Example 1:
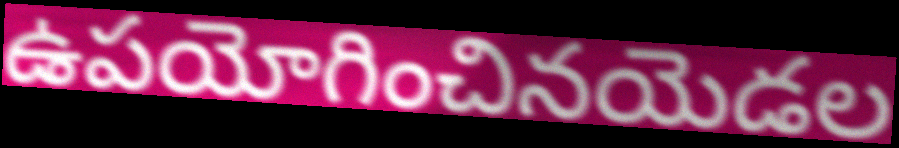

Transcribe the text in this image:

ఉపయోగించినయెడల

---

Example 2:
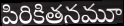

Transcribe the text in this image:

పిరికితనమూ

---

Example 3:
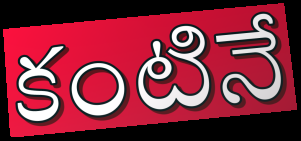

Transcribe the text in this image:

కంటినే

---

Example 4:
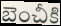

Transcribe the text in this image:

బెంచీకి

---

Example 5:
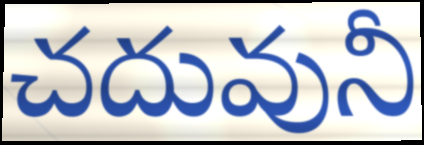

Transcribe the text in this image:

చదువునీ